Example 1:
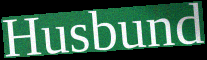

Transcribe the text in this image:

Husbund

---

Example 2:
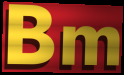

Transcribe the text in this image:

Bm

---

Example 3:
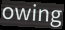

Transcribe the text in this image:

owing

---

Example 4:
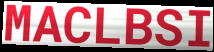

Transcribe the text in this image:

MACLBSI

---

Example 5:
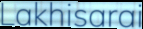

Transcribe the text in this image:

Lakhisarai